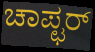
ಚಾಪ್ಟರ್